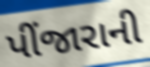
પીંજારાની